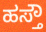
ಹಸ್ತೌ